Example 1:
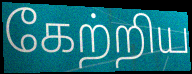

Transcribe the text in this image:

கேற்றிய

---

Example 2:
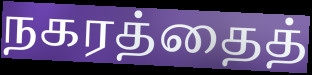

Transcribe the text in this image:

நகரத்தைத்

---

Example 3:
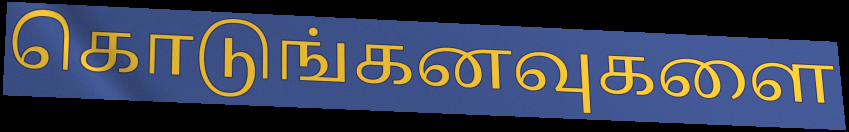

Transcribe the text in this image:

கொடுங்கனவுகளை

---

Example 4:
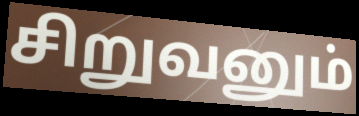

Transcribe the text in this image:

சிறுவனும்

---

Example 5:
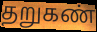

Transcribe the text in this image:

தறுகண்